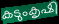
കടുംകൃഷി